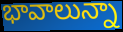
భావాలున్నా